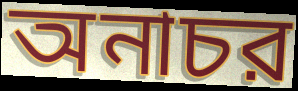
অনাচর